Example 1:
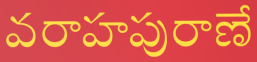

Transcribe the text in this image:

వరాహపురాణే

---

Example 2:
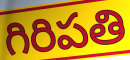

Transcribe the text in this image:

గిరిపతి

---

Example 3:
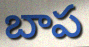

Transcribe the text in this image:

బాప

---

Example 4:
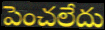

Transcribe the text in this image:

పెంచలేదు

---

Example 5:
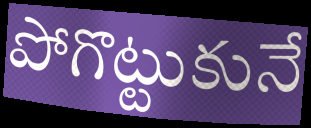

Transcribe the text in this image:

పోగొట్టుకునే